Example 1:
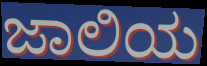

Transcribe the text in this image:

ಜಾಲಿಯ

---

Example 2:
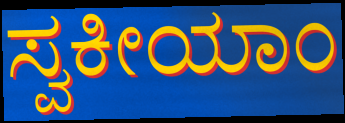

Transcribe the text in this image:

ಸ್ವಕೀಯಾಂ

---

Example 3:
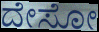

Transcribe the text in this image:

ದೇಸೋ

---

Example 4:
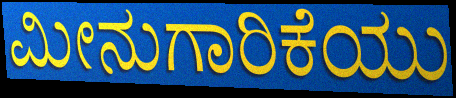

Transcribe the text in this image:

ಮೀನುಗಾರಿಕೆಯು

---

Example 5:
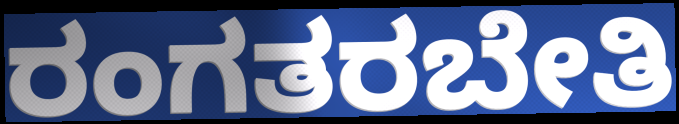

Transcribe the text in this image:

ರಂಗತರಬೇತಿ